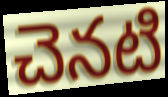
చెనటి